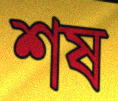
শষ